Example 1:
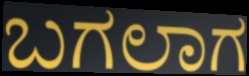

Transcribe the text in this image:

ಬಗಲಾಗ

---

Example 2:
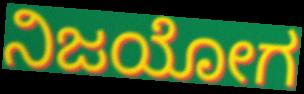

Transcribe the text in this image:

ನಿಜಯೋಗ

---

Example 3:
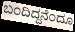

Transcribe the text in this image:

ಬಂದಿದ್ದನೆಂದೂ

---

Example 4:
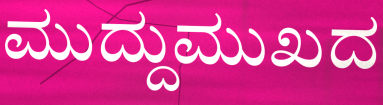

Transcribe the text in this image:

ಮುದ್ದುಮುಖದ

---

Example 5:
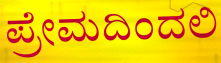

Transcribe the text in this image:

ಪ್ರೇಮದಿಂದಲಿ